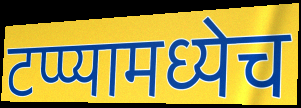
टप्प्यामध्येच